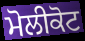
ਮੋਲੀਕੋਟ